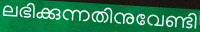
ലഭിക്കുന്നതിനുവേണ്ടി